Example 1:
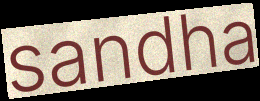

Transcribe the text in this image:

sandha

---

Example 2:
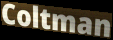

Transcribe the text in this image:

Coltman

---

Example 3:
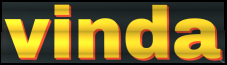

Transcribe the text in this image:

vinda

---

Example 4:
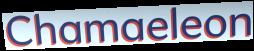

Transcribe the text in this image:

Chamaeleon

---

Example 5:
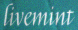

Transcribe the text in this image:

livemint